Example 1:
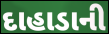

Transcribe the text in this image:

દાહાડાની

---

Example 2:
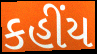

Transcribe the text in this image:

કહીંય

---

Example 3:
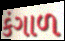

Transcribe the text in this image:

કંગાળ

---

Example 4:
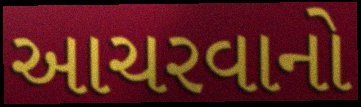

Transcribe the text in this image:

આચરવાનો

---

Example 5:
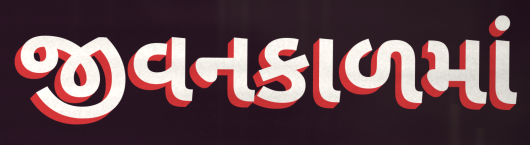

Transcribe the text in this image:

જીવનકાળમાં